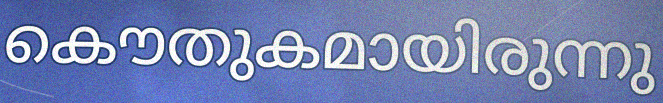
കൌതുകമായിരുന്നു